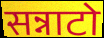
सन्नाटो